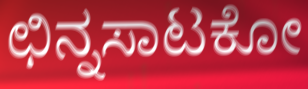
ಛಿನ್ನಸಾಟಕೋ